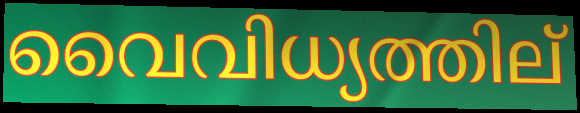
വൈവിധ്യത്തില്